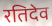
रतिदेव